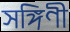
সঙ্গিণী